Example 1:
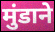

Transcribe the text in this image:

मुंडाने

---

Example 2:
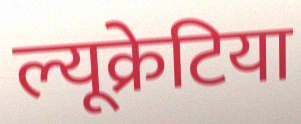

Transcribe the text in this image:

ल्यूक्रेटिया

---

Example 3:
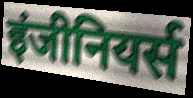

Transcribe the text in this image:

इंजीनियर्स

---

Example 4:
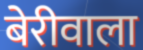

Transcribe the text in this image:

बेरीवाला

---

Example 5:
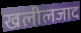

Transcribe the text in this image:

खलीलजाद